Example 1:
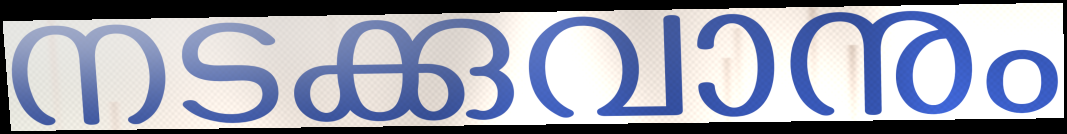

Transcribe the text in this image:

നടക്കുവാനും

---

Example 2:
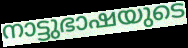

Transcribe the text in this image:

നാട്ടുഭാഷയുടെ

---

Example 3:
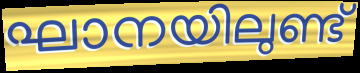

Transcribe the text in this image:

ഘാനയിലുണ്ട്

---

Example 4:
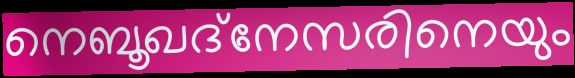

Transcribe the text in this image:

നെബൂഖദ്നേസരിനെയും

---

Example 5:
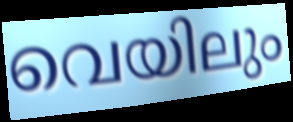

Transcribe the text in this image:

വെയിലും